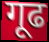
गूढ